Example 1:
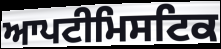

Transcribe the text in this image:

ਆਪਟੀਮਿਸਟਿਕ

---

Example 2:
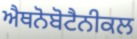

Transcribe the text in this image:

ਐਥਨੋਬੋਟੈਨੀਕਲ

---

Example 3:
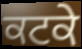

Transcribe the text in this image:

ਕਟਕੇ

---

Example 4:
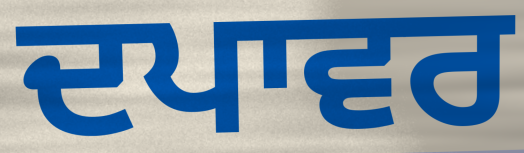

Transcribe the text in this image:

ਦਪਾਵਰ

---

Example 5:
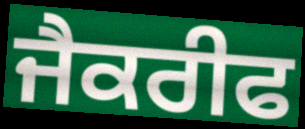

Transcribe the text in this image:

ਜੈਕਰੀਫ